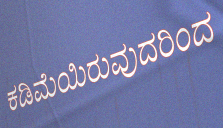
ಕಡಿಮೆಯಿರುವುದರಿಂದ